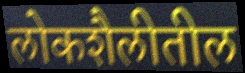
लोकशैलीतील